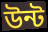
উন্ট